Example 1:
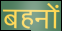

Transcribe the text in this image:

बहनों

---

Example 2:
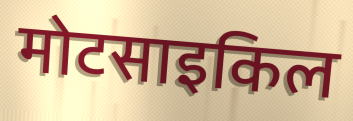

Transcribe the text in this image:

मोटसाइकिल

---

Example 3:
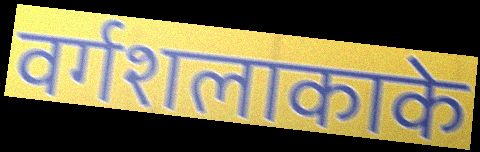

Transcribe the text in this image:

वर्गशलाकाके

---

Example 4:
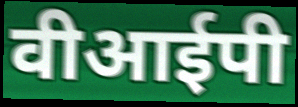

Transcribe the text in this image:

वीआईपी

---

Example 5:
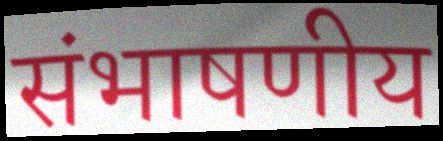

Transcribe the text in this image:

संभाषणीय